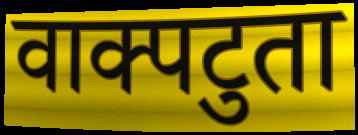
वाक्पटुता